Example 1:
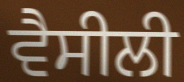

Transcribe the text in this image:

ਵੈਸੀਲੀ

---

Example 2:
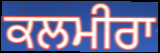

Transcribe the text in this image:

ਕਲਮੀਰਾ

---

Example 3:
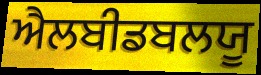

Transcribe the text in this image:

ਐਲਬੀਡਬਲਯੂ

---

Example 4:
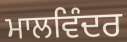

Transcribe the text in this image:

ਮਾਲਵਿੰਦਰ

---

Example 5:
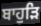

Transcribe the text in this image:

ਬਾਹੁੜਿ